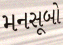
મનસૂબો